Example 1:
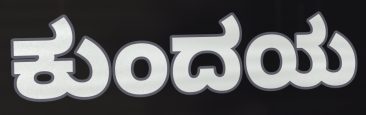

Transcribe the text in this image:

ಕುಂದಯ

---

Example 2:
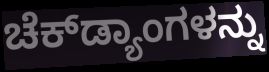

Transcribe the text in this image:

ಚೆಕ್‌ಡ್ಯಾಂಗಳನ್ನು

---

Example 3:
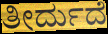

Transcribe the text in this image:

ತೀರ್ದುದೆ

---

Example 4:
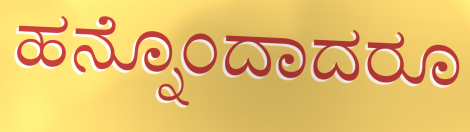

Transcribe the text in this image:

ಹನ್ನೊಂದಾದರೂ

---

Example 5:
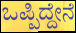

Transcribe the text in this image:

ಒಪ್ಪಿದ್ದೇನೆ